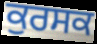
ਕੁਰਸਕ